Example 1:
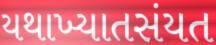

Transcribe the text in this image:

યથાખ્યાતસંયત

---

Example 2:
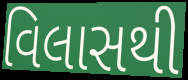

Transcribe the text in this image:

વિલાસથી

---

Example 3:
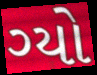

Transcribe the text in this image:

ગ્યો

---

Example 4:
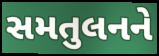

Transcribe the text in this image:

સમતુલનને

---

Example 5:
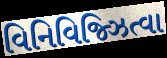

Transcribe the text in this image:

વિનિવિજ્ઝિત્વા